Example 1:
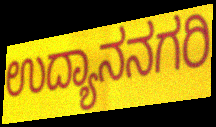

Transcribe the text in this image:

ಉದ್ಯಾನನಗರಿ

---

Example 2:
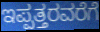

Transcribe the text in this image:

ಇಪ್ಪತ್ತರವರೆಗೆ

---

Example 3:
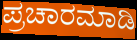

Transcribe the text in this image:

ಪ್ರಚಾರಮಾಡಿ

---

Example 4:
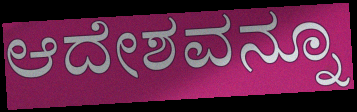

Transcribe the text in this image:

ಆದೇಶವನ್ನೂ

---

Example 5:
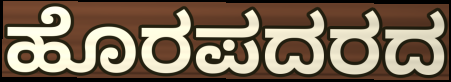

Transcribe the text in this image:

ಹೊರಪದರದ